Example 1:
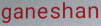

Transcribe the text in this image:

ganeshan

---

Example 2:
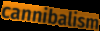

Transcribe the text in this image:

cannibalism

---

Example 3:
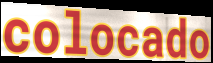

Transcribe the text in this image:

colocado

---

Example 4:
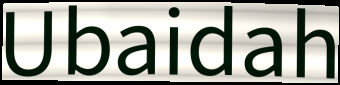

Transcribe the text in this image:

Ubaidah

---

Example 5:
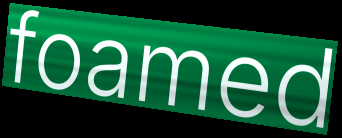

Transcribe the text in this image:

foamed